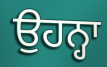
ਉਹਨ੍ਹਾ